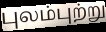
புலம்புற்று